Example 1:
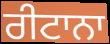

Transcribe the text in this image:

ਰੀਟਾਨਾ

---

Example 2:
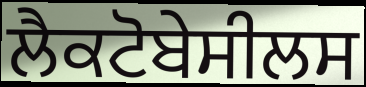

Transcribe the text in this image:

ਲੈਕਟੋਬੇਸੀਲਸ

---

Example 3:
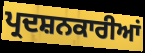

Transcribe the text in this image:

ਪ੍ਰਦਸ਼ਨਕਾਰੀਆਂ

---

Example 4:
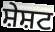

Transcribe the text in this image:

ਸ਼ੇਸ਼ਟ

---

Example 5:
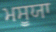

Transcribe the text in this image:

ਮਸੂਯਾ